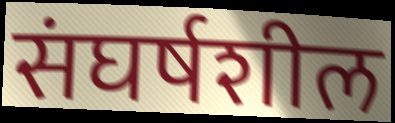
संघर्षशील